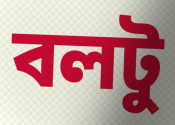
বলটু